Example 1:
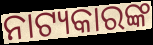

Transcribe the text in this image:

ନାଟ୍ୟକାରଙ୍କ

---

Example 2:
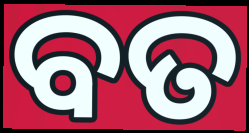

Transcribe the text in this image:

ବତ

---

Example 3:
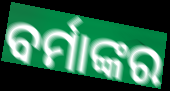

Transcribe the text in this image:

ବର୍ମାଙ୍କର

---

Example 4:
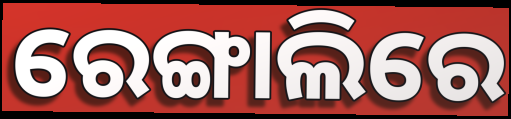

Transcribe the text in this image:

ରେଙ୍ଗାଲିରେ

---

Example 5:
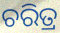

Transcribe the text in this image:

ଚରିତ୍ର